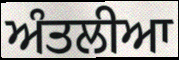
ਅੰਤਲੀਆ